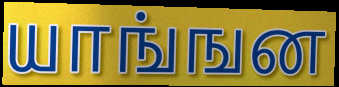
யாங்ஙன